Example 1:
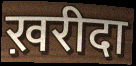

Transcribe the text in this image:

ख़रीदा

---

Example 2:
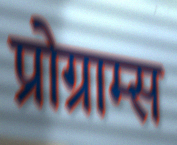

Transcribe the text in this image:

प्रोग्राम्स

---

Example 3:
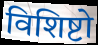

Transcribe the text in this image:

विशिष्टो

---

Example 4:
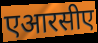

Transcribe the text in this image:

एआरसीए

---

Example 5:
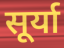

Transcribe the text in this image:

सूर्या